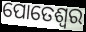
ପୋତେଶ୍ବର